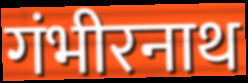
गंभीरनाथ